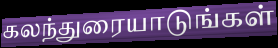
கலந்துரையாடுங்கள்